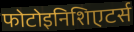
फोटोइनिशिएटर्स